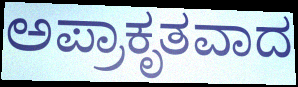
ಅಪ್ರಾಕೃತವಾದ